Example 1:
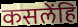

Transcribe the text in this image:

कसलेंहि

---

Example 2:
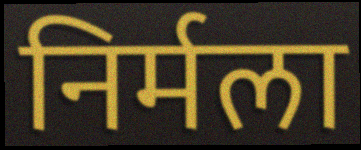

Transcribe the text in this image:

निर्मला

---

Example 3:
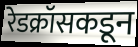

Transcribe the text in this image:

रेडक्रॉसकडून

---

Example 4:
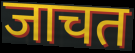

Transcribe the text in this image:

जाचत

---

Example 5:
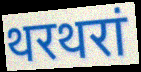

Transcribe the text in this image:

थरथरां